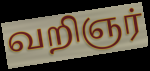
வறிஞர்